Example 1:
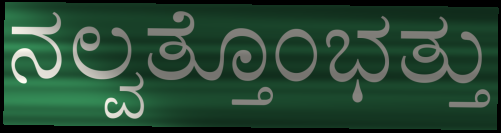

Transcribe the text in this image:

ನಲ್ವತ್ತೊಂಭತ್ತು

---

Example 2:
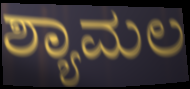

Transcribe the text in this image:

ಶ್ಯಾಮಲ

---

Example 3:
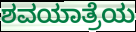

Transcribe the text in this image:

ಶವಯಾತ್ರೆಯ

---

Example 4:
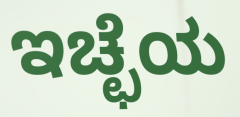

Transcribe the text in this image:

ಇಚ್ಛೆಯ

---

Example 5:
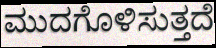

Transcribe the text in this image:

ಮುದಗೊಳಿಸುತ್ತದೆ